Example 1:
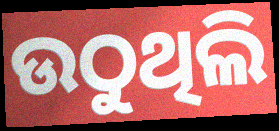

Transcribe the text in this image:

ଉଠୁଥିଲି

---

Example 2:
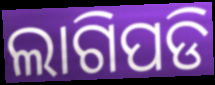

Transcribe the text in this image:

ଲାଗିପଡି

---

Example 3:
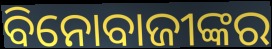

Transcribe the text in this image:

ବିନୋବାଜୀଙ୍କର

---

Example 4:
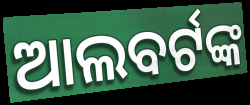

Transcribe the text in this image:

ଆଲବର୍ଟଙ୍କ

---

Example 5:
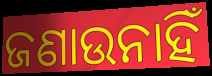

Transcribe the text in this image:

ଜଣାଉନାହିଁ